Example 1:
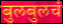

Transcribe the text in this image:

बुलबुलचं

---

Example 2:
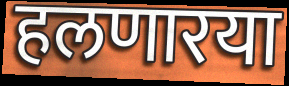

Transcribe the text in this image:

हलणारया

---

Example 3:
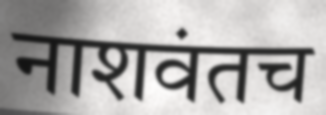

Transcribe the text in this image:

नाशवंतच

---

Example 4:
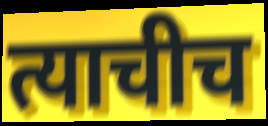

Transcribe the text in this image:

त्याचीच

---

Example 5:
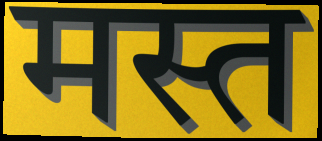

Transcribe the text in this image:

मस्त